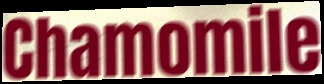
Chamomile